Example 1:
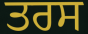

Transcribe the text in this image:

ਤਰਸ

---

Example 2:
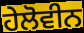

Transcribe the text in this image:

ਹੇਲੋਵੀਨ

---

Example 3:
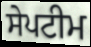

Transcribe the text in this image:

ਸੇਪਟੀਮ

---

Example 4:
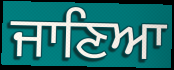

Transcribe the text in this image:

ਜਾਣਿਆ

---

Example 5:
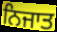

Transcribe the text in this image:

ਨਿਜਾਤ